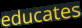
educates